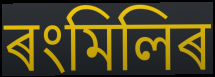
ৰংমিলিৰ